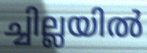
ച്ചില്ലയിൽ